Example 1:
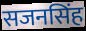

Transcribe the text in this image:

सजनसिंह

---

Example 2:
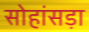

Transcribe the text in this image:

सोहांसड़ा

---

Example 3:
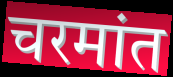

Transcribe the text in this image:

चरमांत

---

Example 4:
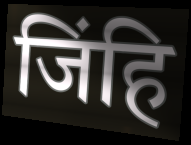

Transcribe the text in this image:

जिंहि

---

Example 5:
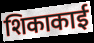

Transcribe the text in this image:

शिकाकाई